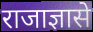
राजाज्ञासे